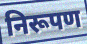
निरूपण